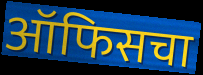
ऑफिसचा